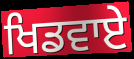
ਖਿਡਵਾਏ